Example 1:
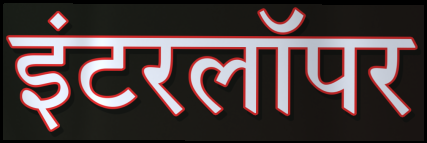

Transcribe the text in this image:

इंटरलॉपर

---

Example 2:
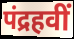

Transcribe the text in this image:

पंद्रहवीं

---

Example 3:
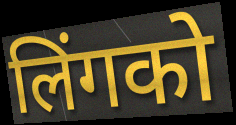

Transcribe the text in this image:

लिंगको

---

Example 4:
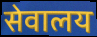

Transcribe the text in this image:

सेवालय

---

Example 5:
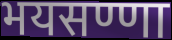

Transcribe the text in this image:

भयसण्णा